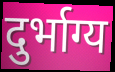
दुर्भाग्य